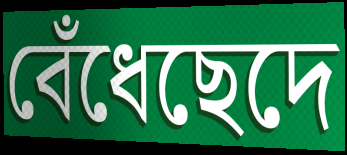
বেঁধেছেদে